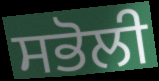
ਸਭੋਲੀ